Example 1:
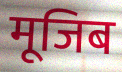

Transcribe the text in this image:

मूजिब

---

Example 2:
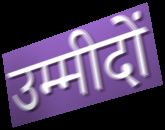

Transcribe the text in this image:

उम्मीदों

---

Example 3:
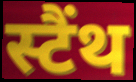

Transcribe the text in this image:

स्टैंथ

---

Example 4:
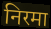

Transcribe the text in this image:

निरमा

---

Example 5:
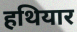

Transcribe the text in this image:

हथियार